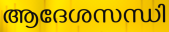
ആദേശസന്ധി